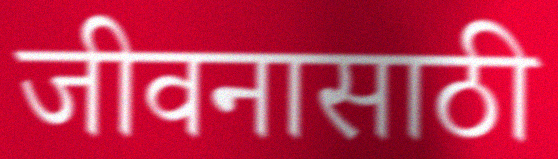
जीवनासाठी